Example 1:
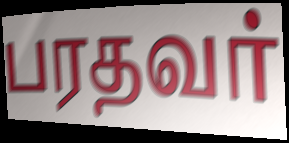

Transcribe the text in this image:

பரதவர்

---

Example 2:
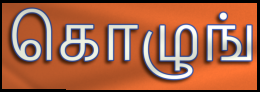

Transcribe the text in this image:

கொழுங்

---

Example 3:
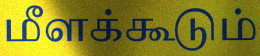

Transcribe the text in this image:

மீளக்கூடும்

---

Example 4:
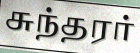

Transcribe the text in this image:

சுந்தரர்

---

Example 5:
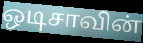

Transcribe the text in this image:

ஒடிசாவின்